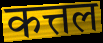
कत्तल